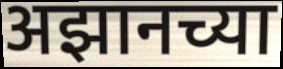
अझानच्या